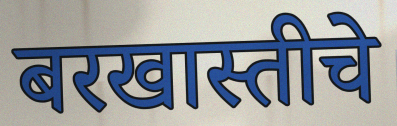
बरखास्तीचे